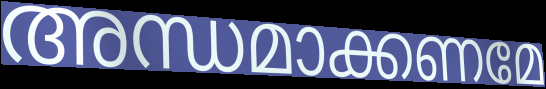
അന്ധമാക്കണമേ